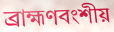
ব্রাহ্মণবংশীয়